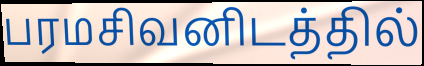
பரமசிவனிடத்தில்